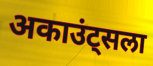
अकाउंट्सला